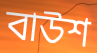
বাউশ